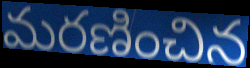
మరణించిన